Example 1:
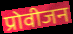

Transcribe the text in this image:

प्रोवीजन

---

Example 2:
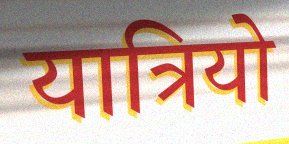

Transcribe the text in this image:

यात्रियो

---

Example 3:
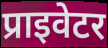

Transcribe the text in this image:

प्राइवेटर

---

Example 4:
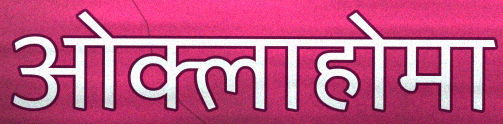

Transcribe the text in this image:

ओक्लाहोमा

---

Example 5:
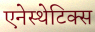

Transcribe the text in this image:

एनेस्थेटिक्स